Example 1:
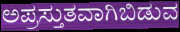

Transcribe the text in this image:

ಅಪ್ರಸ್ತುತವಾಗಿಬಿಡುವ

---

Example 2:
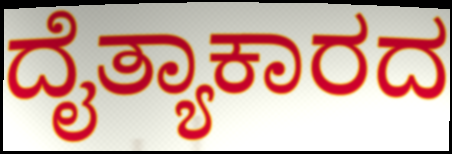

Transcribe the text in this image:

ದೈತ್ಯಾಕಾರದ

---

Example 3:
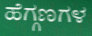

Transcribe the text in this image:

ಹೆಗ್ಗಣಗಳ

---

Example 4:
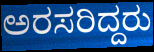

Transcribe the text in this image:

ಅರಸರಿದ್ದರು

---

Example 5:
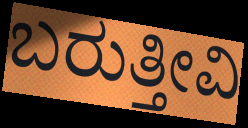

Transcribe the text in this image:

ಬರುತ್ತೀವಿ